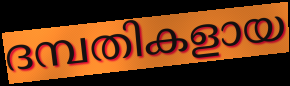
ദമ്പതികളായ